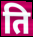
ति